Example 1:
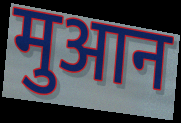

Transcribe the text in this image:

मुआन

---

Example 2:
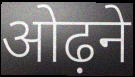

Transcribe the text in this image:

ओढ़ने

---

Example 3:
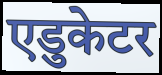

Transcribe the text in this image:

एडुकेटर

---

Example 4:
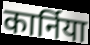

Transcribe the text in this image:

कार्निया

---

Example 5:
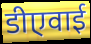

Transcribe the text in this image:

डीएवाई